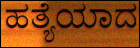
ಹತ್ಯೆಯಾದ